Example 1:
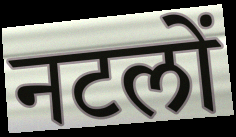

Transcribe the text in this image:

नटलों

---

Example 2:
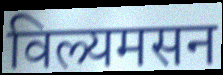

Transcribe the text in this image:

विल्यमसन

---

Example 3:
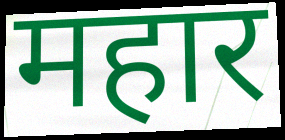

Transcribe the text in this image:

महार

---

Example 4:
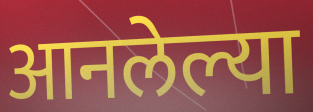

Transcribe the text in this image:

आनलेल्या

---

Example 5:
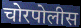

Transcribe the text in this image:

चोरपोलीस